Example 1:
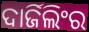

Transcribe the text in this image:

ଦାର୍ଜିଲିଂର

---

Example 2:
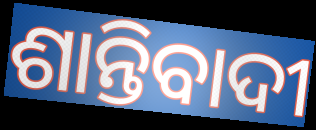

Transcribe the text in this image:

ଶାନ୍ତିବାଦୀ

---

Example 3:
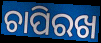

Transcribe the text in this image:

ଚାପିରଖ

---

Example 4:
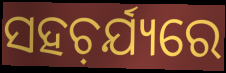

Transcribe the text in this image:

ସହଚ଼ର୍ଯ୍ୟରେ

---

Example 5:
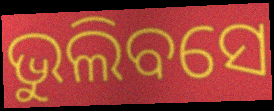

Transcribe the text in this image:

ଭୁଲିବସେ